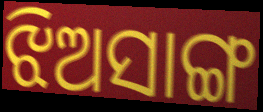
ଝିଅସାଙ୍ଗ